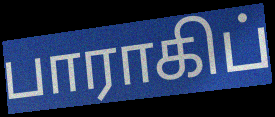
பாராகிப்